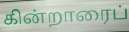
கின்றாரைப்